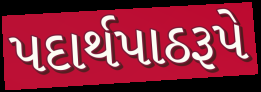
પદાર્થપાઠરૂપે